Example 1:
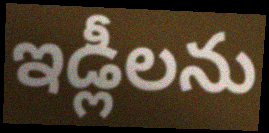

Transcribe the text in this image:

ఇడ్లీలను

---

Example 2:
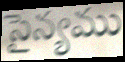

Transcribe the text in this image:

సైన్యము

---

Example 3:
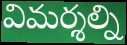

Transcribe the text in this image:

విమర్శల్ని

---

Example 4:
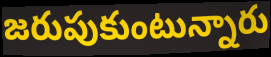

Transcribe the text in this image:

జరుపుకుంటున్నారు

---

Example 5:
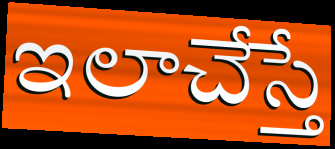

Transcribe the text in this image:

ఇలాచేస్తే